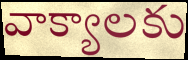
వాక్యాలకు